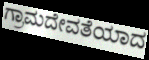
ಗ್ರಾಮದೇವತೆಯಾದ